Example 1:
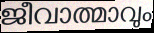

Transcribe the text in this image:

ജീവാത്മാവും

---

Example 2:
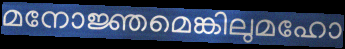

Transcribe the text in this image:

മനോജ്ഞമെങ്കിലുമഹോ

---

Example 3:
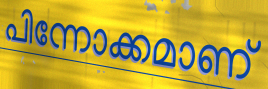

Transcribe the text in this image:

പിന്നോക്കമാണ്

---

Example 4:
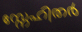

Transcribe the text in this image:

സ്നേഹിതർ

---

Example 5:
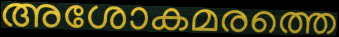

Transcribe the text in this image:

അശോകമരത്തെ